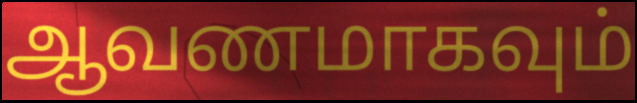
ஆவணமாகவும்